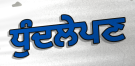
ਧੁੰਦਲੇਪਣ